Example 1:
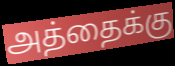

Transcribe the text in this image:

அத்தைக்கு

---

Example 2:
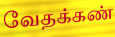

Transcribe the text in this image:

வேதக்கண்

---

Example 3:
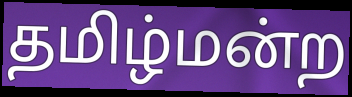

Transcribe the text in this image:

தமிழ்மன்ற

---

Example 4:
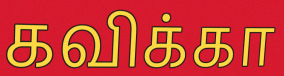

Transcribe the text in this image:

கவிக்கா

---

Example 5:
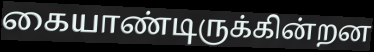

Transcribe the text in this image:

கையாண்டிருக்கின்றன